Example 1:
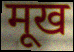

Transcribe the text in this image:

मूख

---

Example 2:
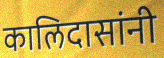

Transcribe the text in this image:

कालिदासांनी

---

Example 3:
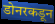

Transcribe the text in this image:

डोनरकडून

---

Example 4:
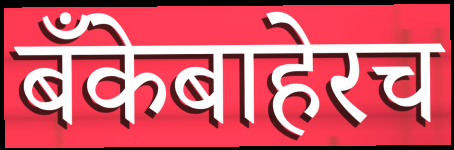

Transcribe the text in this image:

बँकेबाहेरच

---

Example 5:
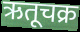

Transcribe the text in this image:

ऋतूचक्र